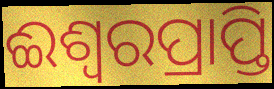
ଈଶ୍ଵରପ୍ରାପ୍ତି